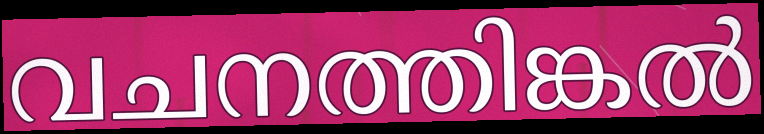
വചനത്തിങ്കൽ